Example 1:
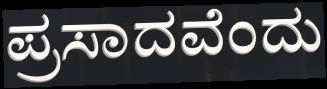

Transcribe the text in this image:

ಪ್ರಸಾದವೆಂದು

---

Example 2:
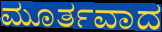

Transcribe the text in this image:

ಮೂರ್ತವಾದ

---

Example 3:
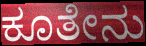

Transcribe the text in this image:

ಕೂತೇನು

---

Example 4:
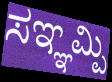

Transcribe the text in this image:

ಸಞ್ಞಮ್ಪಿ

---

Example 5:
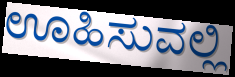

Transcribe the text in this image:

ಊಹಿಸುವಲ್ಲಿ